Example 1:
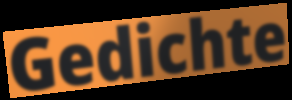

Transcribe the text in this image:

Gedichte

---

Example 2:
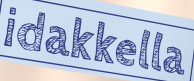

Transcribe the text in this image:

idakkella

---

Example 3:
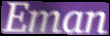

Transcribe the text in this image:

Eman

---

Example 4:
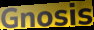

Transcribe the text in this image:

Gnosis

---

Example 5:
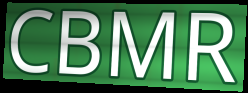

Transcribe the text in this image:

CBMR